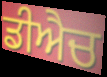
ਡੀਐਚ